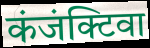
कंजंक्टिवा